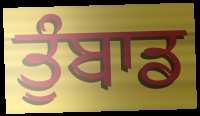
ਤੁੰਬਾਡ